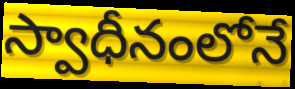
స్వాధీనంలోనే